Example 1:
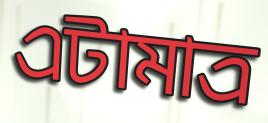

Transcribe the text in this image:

এটামাত্ৰ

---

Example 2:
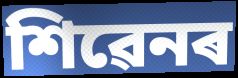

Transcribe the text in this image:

শিৱেনৰ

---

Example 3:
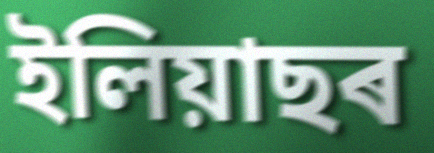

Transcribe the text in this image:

ইলিয়াছৰ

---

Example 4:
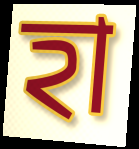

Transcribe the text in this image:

হা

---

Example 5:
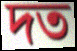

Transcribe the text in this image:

দত